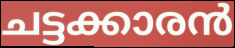
ചട്ടക്കാരൻ